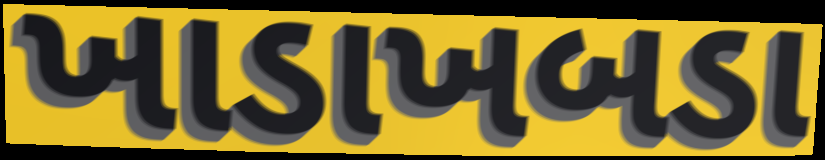
ખાડાખબડા